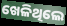
ଖେଳିଥିଲେ